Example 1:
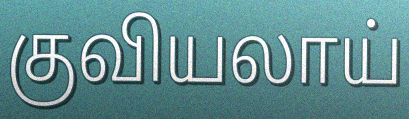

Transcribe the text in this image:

குவியலாய்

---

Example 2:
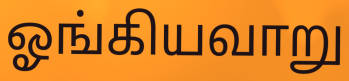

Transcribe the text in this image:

ஓங்கியவாறு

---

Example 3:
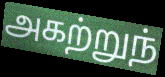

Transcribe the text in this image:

அகற்றுந்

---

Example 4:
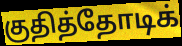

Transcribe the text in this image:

குதித்தோடிக்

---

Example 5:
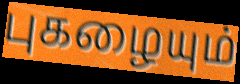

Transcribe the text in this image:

புகழையும்